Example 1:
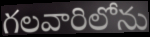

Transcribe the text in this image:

గలవారిలోను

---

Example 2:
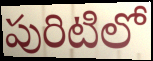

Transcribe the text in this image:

పురిటిలో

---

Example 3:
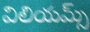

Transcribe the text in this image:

విలియమ్స్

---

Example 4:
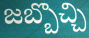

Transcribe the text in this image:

జబ్బొచ్చి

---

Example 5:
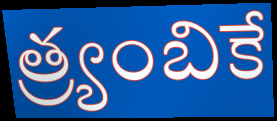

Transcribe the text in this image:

త్ర్యంబికే